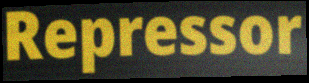
Repressor